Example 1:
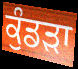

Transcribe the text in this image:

ਕੁੰਡੜਾ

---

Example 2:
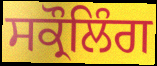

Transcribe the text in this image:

ਸਕ੍ਰੌਲਿੰਗ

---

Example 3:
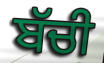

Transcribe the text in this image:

ਬੱਚੀ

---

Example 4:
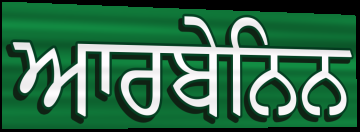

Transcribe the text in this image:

ਆਰਬੇਨਿਨ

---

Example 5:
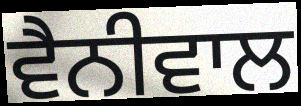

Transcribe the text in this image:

ਵੈਨੀਵਾਲ